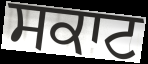
ਸਕਾਟ